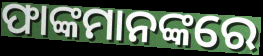
ଫାଙ୍କମାନଙ୍କରେ